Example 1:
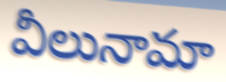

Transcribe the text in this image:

వీలునామా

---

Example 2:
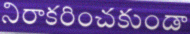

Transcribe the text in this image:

నిరాకరించకుండా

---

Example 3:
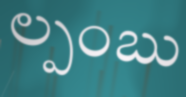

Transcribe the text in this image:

ల్పంబు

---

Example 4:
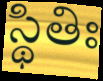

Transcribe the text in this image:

స్థితిః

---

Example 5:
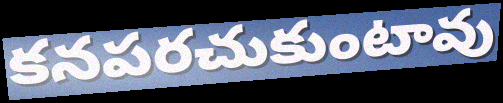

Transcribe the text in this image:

కనపరచుకుంటావు